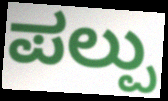
ಪಲ್ಪು